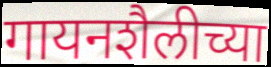
गायनशैलीच्या